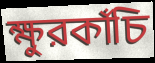
ক্ষুরকাঁচি